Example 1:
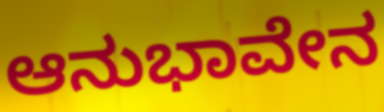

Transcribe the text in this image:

ಆನುಭಾವೇನ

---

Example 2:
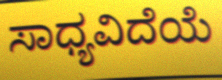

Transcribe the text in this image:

ಸಾಧ್ಯವಿದೆಯೆ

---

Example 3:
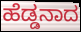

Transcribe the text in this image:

ಹೆಡ್ಡನಾದ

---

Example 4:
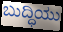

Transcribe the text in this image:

ಬುದ್ಧಿಯು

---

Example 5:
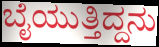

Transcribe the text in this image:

ಬೈಯುತ್ತಿದ್ದನು